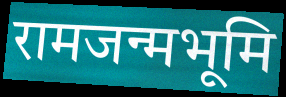
रामजन्मभूमि